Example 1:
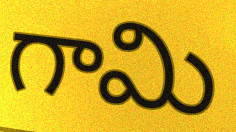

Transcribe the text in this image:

గామి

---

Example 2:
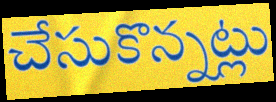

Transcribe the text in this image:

చేసుకొన్నట్లు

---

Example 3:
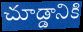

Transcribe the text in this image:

చూడ్డానికి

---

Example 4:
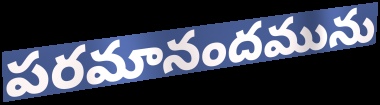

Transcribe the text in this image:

పరమానందమును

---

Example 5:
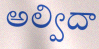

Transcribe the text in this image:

అల్విదా